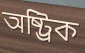
অষ্ট্রিক